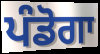
ਪੰਡੋਗਾ